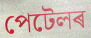
পেটেলৰ